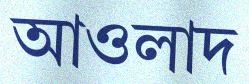
আওলাদ